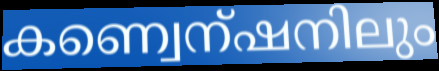
കണ്വെന്ഷനിലും